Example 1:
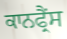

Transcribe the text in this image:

ਕਾਨਫ੍ਰੈਂਸ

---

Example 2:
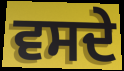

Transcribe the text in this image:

ਵਸਦੇ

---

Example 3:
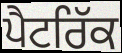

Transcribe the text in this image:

ਪੈਟਰਿੱਕ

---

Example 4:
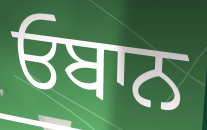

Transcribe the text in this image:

ਓਬਾਨ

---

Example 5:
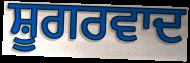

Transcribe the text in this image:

ਸ਼ੂਗਰਵਾਦ